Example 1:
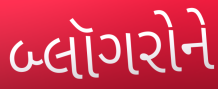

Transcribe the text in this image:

બ્લૉગરોને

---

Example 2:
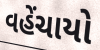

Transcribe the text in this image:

વહેંચાયો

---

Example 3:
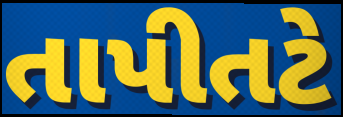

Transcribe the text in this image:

તાપીતટે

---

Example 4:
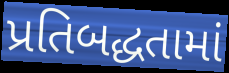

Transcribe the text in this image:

પ્રતિબદ્ધતામાં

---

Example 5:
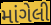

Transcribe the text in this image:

માંગેલી